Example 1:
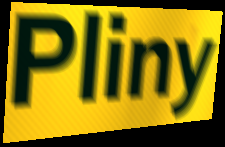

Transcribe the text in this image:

Pliny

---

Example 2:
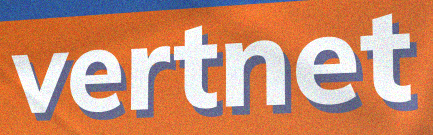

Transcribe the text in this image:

vertnet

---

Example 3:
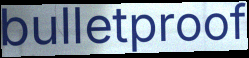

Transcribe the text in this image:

bulletproof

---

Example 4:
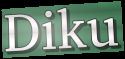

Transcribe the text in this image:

Diku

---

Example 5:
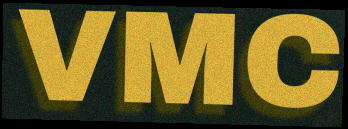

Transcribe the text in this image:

VMC